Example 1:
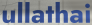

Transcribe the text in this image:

ullathai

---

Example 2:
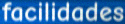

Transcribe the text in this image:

facilidades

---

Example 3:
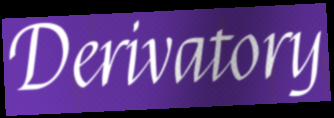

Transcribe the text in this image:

Derivatory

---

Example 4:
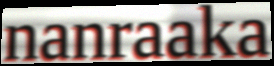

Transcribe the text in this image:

nanraaka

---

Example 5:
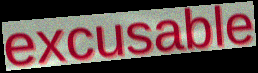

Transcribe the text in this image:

excusable